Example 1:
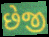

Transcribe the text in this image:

છેજી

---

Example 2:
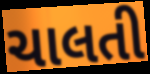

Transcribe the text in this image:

ચાલતી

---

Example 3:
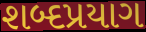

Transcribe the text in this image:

શબ્દપ્રયાગ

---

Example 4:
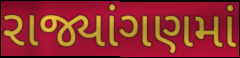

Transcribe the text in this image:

રાજ્યાંગણમાં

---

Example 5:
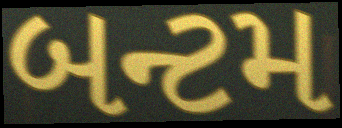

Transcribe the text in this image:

બન્ટમ